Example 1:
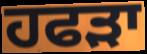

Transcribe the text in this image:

ਹਫੜਾ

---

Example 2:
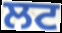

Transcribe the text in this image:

ਲਟ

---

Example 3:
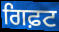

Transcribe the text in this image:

ਗਿਫ਼ਟ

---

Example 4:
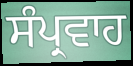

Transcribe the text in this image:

ਸੰਪ੍ਰਵਾਹ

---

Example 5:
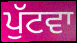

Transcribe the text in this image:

ਪੁੱਟਵਾ